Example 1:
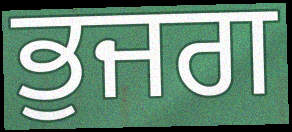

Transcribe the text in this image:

ਭੁਜਗ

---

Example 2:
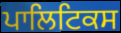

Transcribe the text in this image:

ਪਾਲਿਟਿਕਸ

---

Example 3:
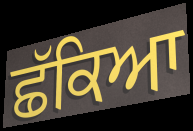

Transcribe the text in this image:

ਛੱਕਿਆ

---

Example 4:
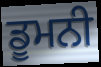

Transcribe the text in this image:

ਡੂਮਨੀ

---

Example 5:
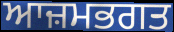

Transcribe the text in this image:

ਆਜ਼ਮਭਗਤ